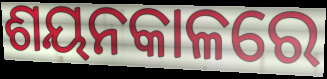
ଶୟନକାଳରେ